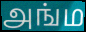
அங்ம